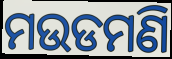
ମଉଡମଣି